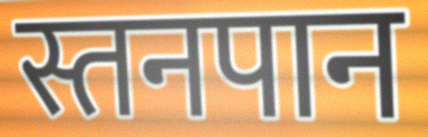
स्तनपान